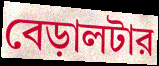
বেড়ালটার